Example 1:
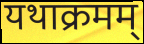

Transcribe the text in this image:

यथाक्रमम्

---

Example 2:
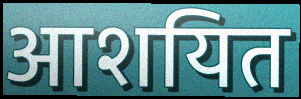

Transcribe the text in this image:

आशयित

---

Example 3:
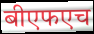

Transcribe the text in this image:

बीएफएच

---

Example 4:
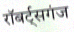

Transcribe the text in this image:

रॉबर्ट्सगंज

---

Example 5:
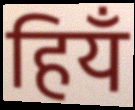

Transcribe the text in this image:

हियँ